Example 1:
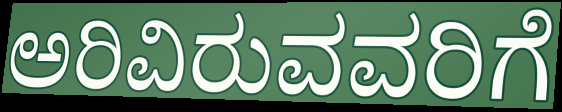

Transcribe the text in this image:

ಅರಿವಿರುವವರಿಗೆ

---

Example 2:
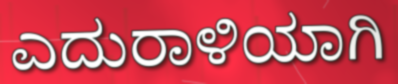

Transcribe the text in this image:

ಎದುರಾಳಿಯಾಗಿ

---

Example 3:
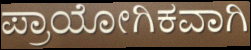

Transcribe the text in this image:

ಪ್ರಾಯೋಗಿಕವಾಗಿ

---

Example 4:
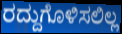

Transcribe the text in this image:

ರದ್ದುಗೊಳಿಸಲಿಲ್ಲ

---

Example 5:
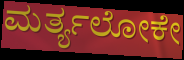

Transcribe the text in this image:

ಮರ್ತ್ಯಲೋಕೇ